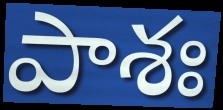
పాశః